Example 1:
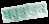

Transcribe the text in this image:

ਬਹੁਭਾਂਤਕ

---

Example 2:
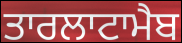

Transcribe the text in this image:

ਤਾਰਲਾਟਾਮੈਬ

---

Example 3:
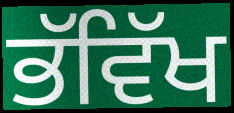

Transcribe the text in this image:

ਭੱਵਿੱਖ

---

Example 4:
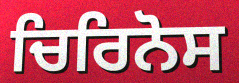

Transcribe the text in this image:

ਚਿਰਿਨੋਸ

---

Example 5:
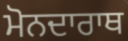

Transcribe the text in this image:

ਮੋਨਦਾਰਾਥ